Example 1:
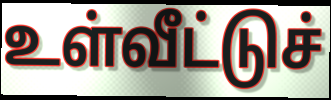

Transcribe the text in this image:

உள்வீட்டுச்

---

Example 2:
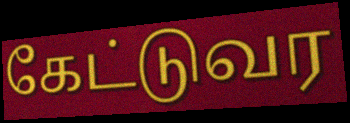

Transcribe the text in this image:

கேட்டுவர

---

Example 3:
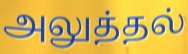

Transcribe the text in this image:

அலுத்தல்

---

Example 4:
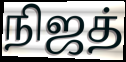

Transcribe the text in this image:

நிஜத்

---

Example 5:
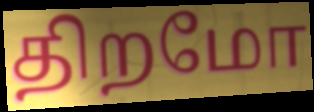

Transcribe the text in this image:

திறமோ